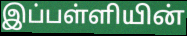
இப்பள்ளியின்